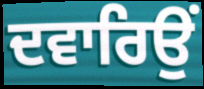
ਦਵਾਰਿਉਂ